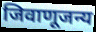
जिवाणूजन्य